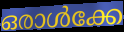
ഒരാൾക്കേ